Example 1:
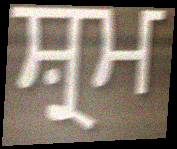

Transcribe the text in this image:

ਸ਼੍ਰਮ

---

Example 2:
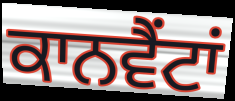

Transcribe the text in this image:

ਕਾਨਵੈਂਟਾਂ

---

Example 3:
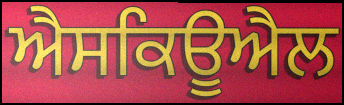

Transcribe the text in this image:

ਐਸਕਿਊਐਲ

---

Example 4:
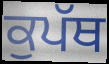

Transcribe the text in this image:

ਕੁਪੱਥ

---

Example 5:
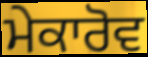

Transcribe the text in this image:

ਮੇਕਾਰੋਵ